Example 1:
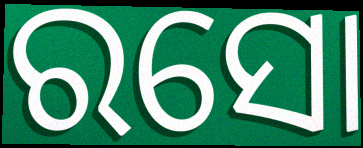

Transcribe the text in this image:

ରସୋ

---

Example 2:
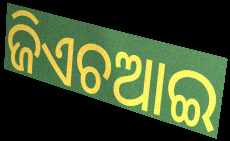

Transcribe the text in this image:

ଜିଏଚଆଇ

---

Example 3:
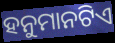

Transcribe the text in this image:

ହନୁମାନଟିଏ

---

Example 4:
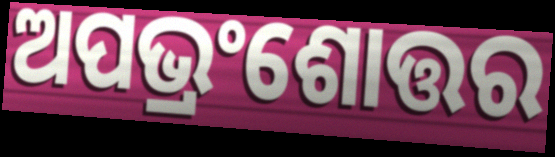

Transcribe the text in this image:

ଅପଭ୍ରଂଶୋତ୍ତର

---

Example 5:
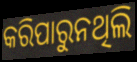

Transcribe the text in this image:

କରିପାରୁନଥିଲି